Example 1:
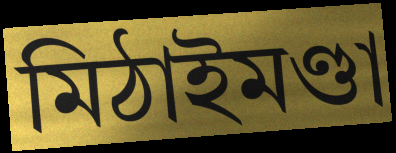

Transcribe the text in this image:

মিঠাইমণ্ডা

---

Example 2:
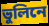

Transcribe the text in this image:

ভুলিনে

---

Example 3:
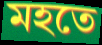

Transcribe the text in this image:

মহতে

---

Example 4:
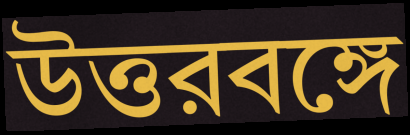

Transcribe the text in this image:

উত্তরবঙ্গে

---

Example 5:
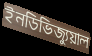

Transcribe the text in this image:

ইনডিভিজ্যুয়াল